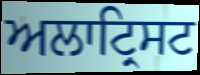
ਅਲਾਟ੍ਰਿਸਟ